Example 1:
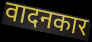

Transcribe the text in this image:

वादनकार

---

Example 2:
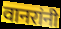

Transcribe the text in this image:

वानरांनी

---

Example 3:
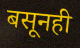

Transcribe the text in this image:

बसूनही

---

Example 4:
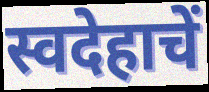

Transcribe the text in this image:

स्वदेहाचें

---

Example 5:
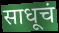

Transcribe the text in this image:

साधूचं